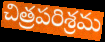
చిత్రపరిశ్రమ